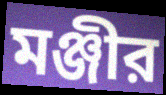
মঞ্জীর